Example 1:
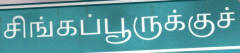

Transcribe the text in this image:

சிங்கப்பூருக்குச்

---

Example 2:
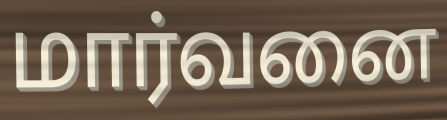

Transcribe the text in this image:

மார்வனை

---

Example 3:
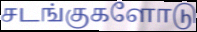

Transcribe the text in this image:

சடங்குகளோடு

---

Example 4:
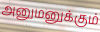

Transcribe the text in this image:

அனுமனுக்கும்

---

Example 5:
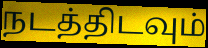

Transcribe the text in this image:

நடத்திடவும்